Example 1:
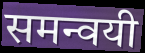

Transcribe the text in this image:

समन्वयी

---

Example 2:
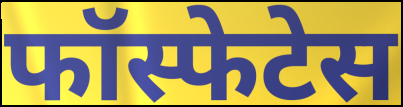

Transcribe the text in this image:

फॉस्फेटेस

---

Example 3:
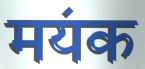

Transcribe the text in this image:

मयंक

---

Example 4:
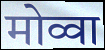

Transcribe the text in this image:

मोव्वा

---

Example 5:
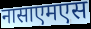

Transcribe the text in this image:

नासाएमएस